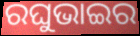
ରଘୁଭାଇର